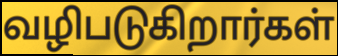
வழிபடுகிறார்கள்